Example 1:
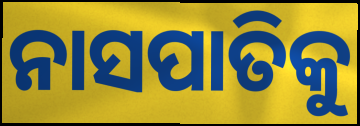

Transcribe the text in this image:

ନାସପାତିକୁ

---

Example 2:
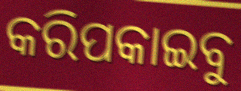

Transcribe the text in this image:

କରିପକାଇବୁ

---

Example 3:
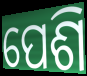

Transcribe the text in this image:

ପେଶି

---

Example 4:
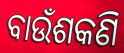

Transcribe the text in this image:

ବାଉଁଶକଣି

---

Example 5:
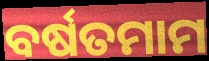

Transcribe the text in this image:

ବର୍ଷତମାମ